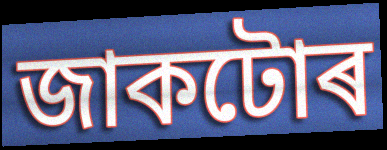
জাকটোৰ